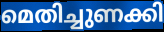
മെതിച്ചുണക്കി